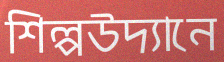
শিল্পউদ্যানে